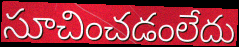
సూచించడంలేదు